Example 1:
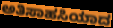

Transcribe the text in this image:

ಅತಿಸಾಹಸಿಯಾದ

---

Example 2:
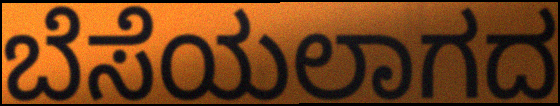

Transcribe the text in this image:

ಬೆಸೆಯಲಾಗದ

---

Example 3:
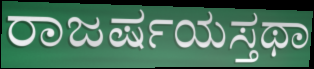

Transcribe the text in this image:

ರಾಜರ್ಷಯಸ್ತಥಾ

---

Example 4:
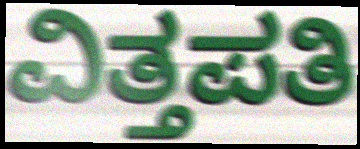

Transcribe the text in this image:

ವಿತ್ತಪತಿ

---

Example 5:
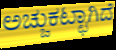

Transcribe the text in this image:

ಅಚ್ಚುಕಟ್ಟಾಗಿದೆ